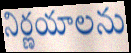
నిర్ణయాలను